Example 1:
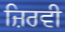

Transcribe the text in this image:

ਜ਼ਿਰਵੀ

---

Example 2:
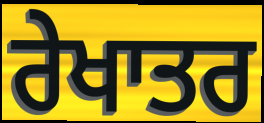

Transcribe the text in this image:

ਰੇਖਾਤਰ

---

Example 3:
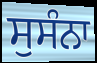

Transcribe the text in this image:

ਸੁਸੰਨਾ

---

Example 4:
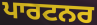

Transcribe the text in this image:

ਪਾਰਟਨਰ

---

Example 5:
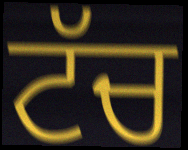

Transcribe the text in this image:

ਟੱਚ